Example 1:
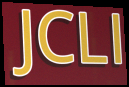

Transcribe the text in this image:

JCLI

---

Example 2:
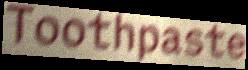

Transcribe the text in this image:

Toothpaste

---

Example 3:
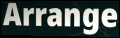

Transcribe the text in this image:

Arrange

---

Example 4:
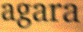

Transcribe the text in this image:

agara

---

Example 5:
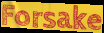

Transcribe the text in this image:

Forsake